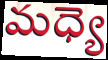
మధ్యె